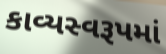
કાવ્યસ્વરૂપમાં